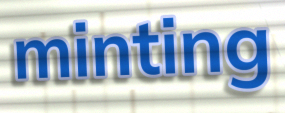
minting